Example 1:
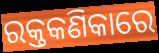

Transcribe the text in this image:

ରକ୍ତକଣିକାରେ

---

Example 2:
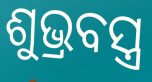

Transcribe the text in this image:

ଶୁଭ୍ରବସ୍ତ୍ର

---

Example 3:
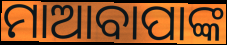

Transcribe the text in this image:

ମାଆବାପାଙ୍କ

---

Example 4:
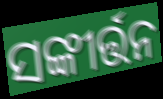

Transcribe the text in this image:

ସଙ୍କୀର୍ତ୍ତନ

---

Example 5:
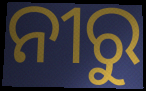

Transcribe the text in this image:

ନୀରୁ